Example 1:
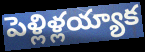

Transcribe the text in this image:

పెళ్లిళ్లయ్యాక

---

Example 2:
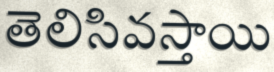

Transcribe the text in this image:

తెలిసివస్తాయి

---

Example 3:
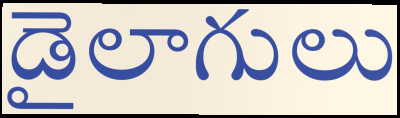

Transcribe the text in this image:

డైలాగులు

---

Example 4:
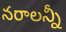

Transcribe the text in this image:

నరాలన్నీ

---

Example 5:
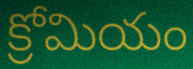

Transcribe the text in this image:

క్రోమియం